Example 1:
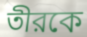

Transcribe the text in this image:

তীরকে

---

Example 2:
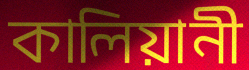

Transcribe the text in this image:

কালিয়ানী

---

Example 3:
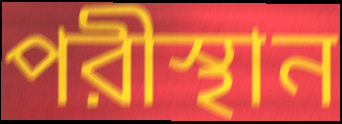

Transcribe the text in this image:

পরীস্থান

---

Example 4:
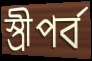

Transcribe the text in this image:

স্ত্রীপর্ব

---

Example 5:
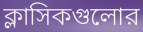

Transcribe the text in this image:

ক্লাসিকগুলোর